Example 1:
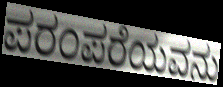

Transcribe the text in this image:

ಪರಂಪರೆಯವನು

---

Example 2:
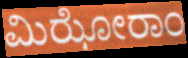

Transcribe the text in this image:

ಮಿಝೋರಾಂ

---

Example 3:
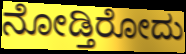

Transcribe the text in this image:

ನೋಡ್ತಿರೋದು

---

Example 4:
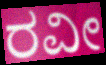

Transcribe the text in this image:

ರವೀ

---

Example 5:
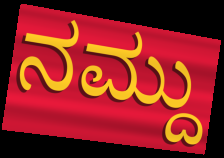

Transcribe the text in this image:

ನಮ್ದು